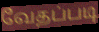
வேதப்படி